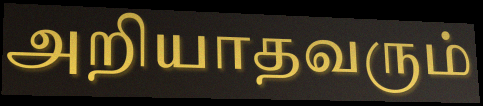
அறியாதவரும்